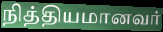
நித்தியமானவர்